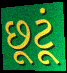
છૂટૂં